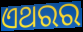
ଏଥରର